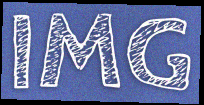
IMG